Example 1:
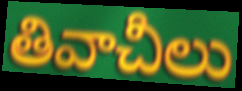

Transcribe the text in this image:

తివాచీలు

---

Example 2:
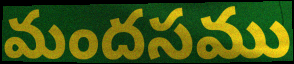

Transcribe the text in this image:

మందసము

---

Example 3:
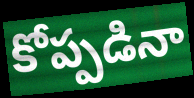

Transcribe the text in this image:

కోప్పడినా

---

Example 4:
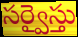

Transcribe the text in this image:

సర్వైస్తు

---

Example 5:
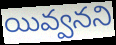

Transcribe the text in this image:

యివ్వనని